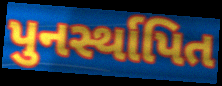
પુનર્સ્થાપિત